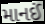
માનઈં